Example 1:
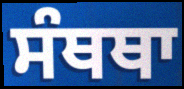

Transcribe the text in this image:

ਸੰਥਥਾ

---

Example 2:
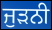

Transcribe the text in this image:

ਜੁੜਨੀ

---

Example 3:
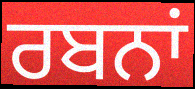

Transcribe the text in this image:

ਰਬਨਾਂ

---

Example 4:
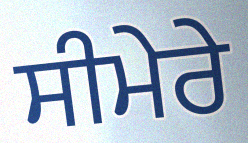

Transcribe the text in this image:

ਸੀਮੇਰੇ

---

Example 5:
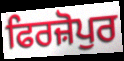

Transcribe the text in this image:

ਫਿਰਜ਼ੋਪੁਰ